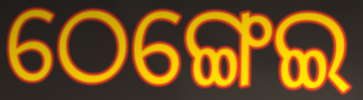
ଠେଙ୍ଗେଇ